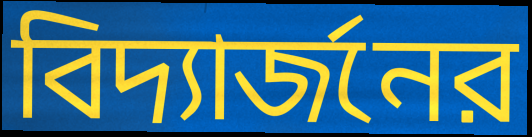
বিদ্যার্জনের